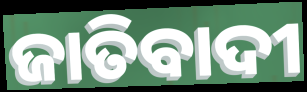
ଜାତିବାଦୀ